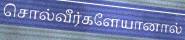
சொல்வீர்களேயானால்